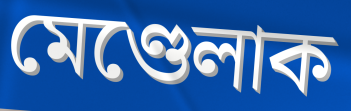
মেণ্ডেলাক